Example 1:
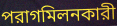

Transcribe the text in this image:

পরাগমিলনকারী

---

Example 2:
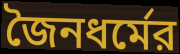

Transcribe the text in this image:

জৈনধর্মের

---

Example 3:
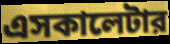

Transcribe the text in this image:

এসকালেটার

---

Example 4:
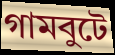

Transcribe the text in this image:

গামবুটে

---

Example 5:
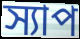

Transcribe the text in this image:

স্যাপ